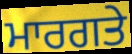
ਮਾਰਗਤੇ